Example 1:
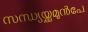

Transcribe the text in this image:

സന്ധ്യയ്ക്കുമുൻപേ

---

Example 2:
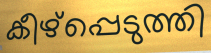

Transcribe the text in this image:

കീഴ്പ്പെടുത്തി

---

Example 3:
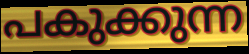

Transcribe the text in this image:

പകുക്കുന്ന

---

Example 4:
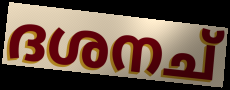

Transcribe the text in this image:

ദശനച്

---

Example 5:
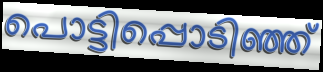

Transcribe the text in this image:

പൊട്ടിപ്പൊടിഞ്ഞ്